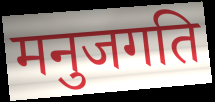
मनुजगति